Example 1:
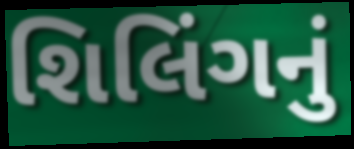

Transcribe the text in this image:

શિલિંગનું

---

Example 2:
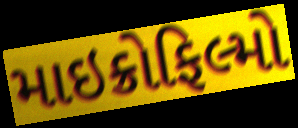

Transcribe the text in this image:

માઇક્રોફિલ્મો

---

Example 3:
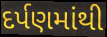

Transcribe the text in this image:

દર્પણમાંથી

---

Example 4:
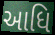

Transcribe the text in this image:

આધિ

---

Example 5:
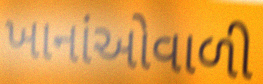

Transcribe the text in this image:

ખાનાંઓવાળી